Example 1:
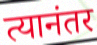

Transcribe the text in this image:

त्यानंतर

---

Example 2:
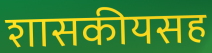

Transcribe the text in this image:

शासकीयसह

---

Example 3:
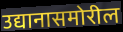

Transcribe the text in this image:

उद्यानासमोरील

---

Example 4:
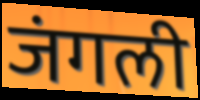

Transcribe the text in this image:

जंगली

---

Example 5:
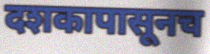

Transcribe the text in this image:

दशकापासूनच